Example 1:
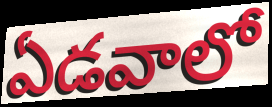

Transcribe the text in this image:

ఏడవాలో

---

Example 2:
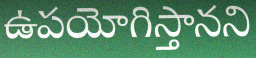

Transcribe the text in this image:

ఉపయోగిస్తానని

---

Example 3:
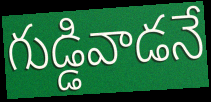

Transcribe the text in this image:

గుడ్డివాడనే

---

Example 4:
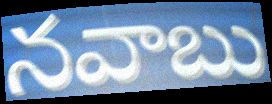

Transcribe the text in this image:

నవాబు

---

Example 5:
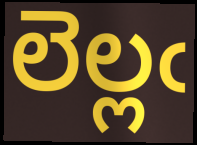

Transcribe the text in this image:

లెల్లఁ